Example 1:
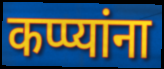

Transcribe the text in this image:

कप्प्यांना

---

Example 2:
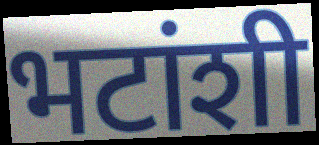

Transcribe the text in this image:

भटांशी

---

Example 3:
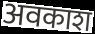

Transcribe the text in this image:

अवकाश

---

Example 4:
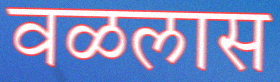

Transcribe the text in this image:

वळलास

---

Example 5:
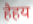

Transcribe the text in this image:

हैहय